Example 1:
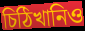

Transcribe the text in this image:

চিঠিখানিও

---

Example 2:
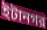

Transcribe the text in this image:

ইটানগর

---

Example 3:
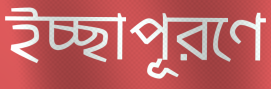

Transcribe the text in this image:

ইচ্ছাপূরণে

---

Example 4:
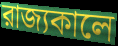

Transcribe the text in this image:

রাজ্যকালে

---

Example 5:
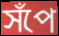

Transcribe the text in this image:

সঁপে